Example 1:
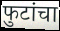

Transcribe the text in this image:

फुटांचा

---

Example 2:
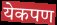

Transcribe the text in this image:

येकपण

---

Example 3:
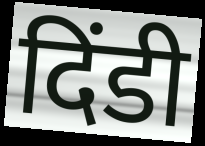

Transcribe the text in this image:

दिंडी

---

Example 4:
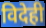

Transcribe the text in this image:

विदेही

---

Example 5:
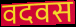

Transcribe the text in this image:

वदवस